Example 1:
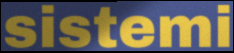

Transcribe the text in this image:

sistemi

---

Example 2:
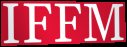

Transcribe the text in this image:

IFFM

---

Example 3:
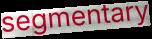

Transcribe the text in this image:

segmentary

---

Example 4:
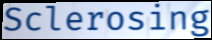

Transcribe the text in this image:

Sclerosing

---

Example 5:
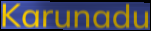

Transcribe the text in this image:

Karunadu